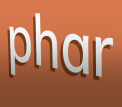
phar